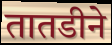
तातडीने